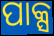
ପାକ୍ସ